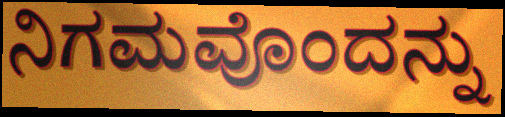
ನಿಗಮವೊಂದನ್ನು